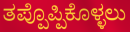
ತಪ್ಪೊಪ್ಪಿಕೊಳ್ಳಲು